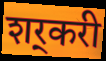
शर्करी